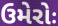
ઉમેરોઃ